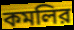
কমলির